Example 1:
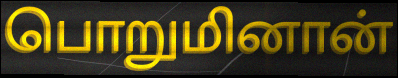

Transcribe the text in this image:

பொறுமினான்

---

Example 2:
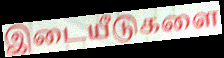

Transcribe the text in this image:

இடையீடுகளை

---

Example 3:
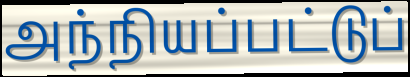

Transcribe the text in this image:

அந்நியப்பட்டுப்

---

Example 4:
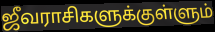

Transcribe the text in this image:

ஜீவராசிகளுக்குள்ளும்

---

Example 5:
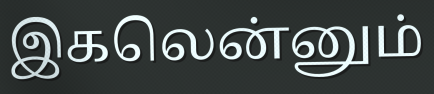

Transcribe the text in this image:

இகலென்னும்